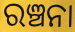
ରଞ୍ଚନା